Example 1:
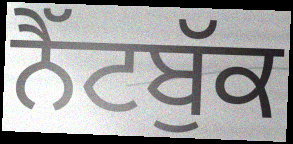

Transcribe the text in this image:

ਨੈੱਟਬੁੱਕ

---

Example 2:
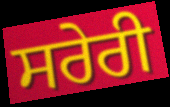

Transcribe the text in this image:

ਸਰੇਰੀ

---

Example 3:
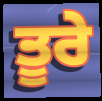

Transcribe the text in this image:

ਤੂਰੇ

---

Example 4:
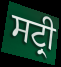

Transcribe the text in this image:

ਸਟ੍ਰੀ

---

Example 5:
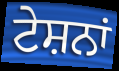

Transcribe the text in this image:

ਟੇਸ਼ਨਾਂ